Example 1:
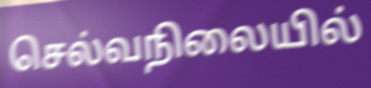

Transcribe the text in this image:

செல்வநிலையில்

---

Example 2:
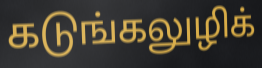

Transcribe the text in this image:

கடுங்கலுழிக்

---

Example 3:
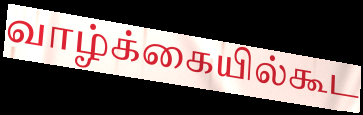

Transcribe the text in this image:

வாழ்க்கையில்கூட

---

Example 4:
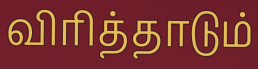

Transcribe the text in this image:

விரித்தாடும்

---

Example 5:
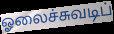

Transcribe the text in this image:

ஓலைச்சுவடிப்